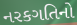
નરકગતિનો